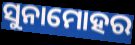
ସୁନାମୋହର